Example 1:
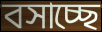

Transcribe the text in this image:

বসাচ্ছে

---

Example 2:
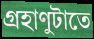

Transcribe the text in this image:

গ্রহাণুটাতে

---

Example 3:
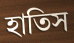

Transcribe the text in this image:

হাতিস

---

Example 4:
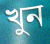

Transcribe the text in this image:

খুন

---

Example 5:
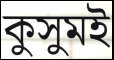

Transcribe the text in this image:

কুসুমই